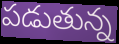
పడుతున్న